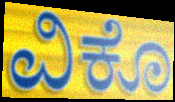
ವಿಕೊ